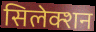
सिलेक्शन